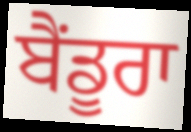
ਬੈਂਡੂਰਾ